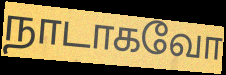
நாடாகவோ